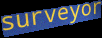
surveyor